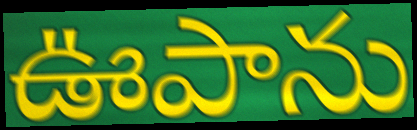
ఊపాను